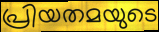
പ്രിയതമയുടെ